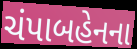
ચંપાબહેનના